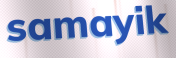
samayik